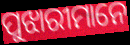
ପୁଝାରୀମାନେ